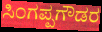
ಸಿಂಗಪ್ಪಗೌಡರ